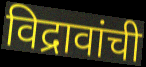
विद्रावांची